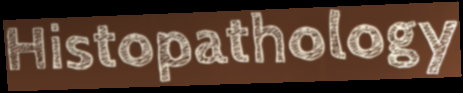
Histopathology